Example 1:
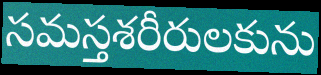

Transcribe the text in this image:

సమస్తశరీరులకును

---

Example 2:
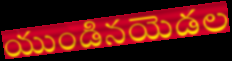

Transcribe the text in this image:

యుండినయెడల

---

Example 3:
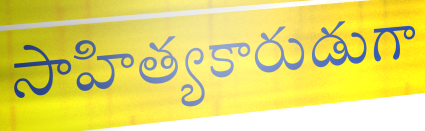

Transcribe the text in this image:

సాహిత్యకారుడుగా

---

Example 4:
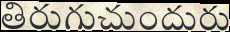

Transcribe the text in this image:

తిరుగుచుందురు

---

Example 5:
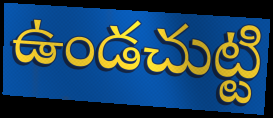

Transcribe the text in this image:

ఉండచుట్టి